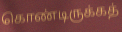
கொண்டிருக்கத்